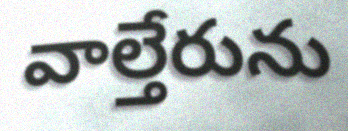
వాల్తేరును